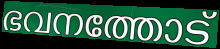
ഭവനത്തോട്